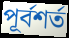
পূর্বশর্ত